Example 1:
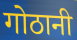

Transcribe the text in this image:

गोठानी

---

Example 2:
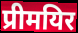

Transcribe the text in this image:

प्रीमयिर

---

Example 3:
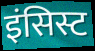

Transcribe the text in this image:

इंसिस्ट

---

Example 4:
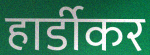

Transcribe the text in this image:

हार्डीकर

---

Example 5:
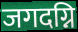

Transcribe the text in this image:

जगदग्नि